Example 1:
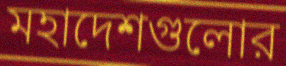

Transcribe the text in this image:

মহাদেশগুলোর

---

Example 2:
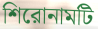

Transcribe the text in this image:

শিরোনামটি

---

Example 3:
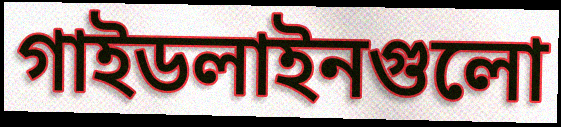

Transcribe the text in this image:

গাইডলাইনগুলো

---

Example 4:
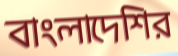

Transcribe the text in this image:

বাংলাদেশির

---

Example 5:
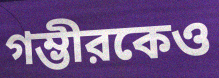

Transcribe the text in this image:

গম্ভীরকেও